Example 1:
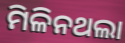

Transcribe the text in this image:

ମିଳିନଥଲା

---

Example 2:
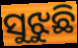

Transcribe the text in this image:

ସୁଝୁଛି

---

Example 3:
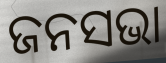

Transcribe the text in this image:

ଜନସଭା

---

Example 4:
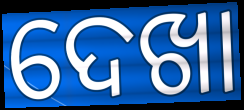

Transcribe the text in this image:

ଦେଖା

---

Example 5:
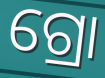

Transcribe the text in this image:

ଗ୍ରୋ